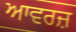
ਆਵਰਜ਼